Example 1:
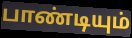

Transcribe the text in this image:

பாண்டியும்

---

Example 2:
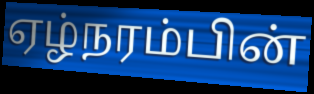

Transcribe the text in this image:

ஏழ்நரம்பின்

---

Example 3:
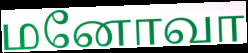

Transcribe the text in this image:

மனோவா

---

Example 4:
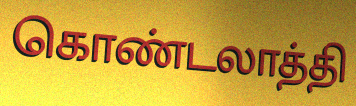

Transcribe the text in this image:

கொண்டலாத்தி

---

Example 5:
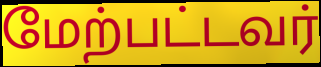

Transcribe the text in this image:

மேற்பட்டவர்